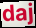
daj